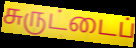
சுருட்டைப்